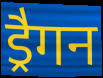
ड्रैगन